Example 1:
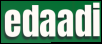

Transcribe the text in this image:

edaadi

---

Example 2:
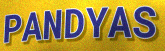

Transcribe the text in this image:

PANDYAS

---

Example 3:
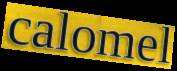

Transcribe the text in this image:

calomel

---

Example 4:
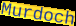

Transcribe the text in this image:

Murdoch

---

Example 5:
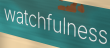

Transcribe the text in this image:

watchfulness